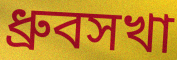
ধ্রুবসখা